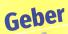
Geber